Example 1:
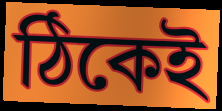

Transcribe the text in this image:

ঠিকেই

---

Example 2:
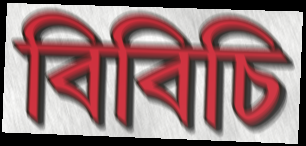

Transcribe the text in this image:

বিবিচি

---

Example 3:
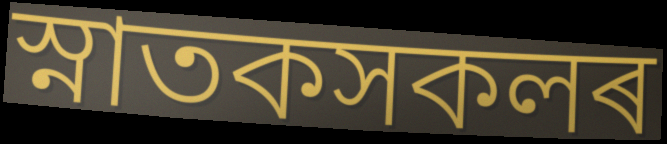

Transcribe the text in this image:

স্নাতকসকলৰ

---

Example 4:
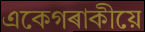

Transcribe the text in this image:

একেগৰাকীয়ে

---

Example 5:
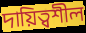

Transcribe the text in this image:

দায়িত্বশীল